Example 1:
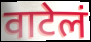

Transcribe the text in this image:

वाटेलं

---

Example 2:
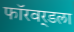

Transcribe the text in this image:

फॉरवर्डला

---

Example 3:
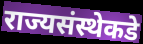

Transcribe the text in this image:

राज्यसंस्थेकडे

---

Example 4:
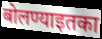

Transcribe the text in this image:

बोलण्याइतका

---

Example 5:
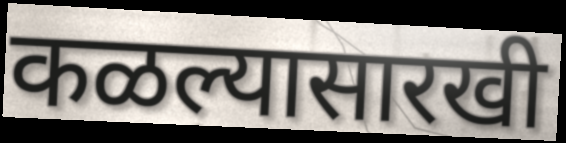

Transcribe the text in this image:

कळल्यासारखी